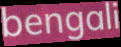
bengali